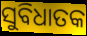
ସୁବିଧାତକ